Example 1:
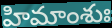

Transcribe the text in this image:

హిమాంశుః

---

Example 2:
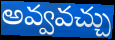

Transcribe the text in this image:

అవ్వవచ్చు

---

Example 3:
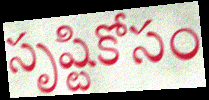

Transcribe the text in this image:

సృష్టికోసం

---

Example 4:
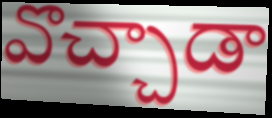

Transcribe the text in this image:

వొచ్చాడా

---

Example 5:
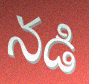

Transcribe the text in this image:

నడి